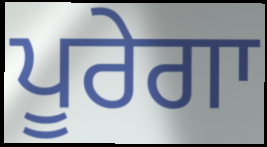
ਪੂਰੇਗਾ